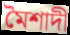
মৈশাদী